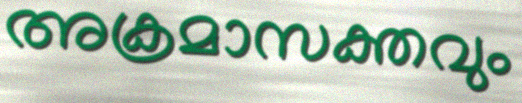
അക്രമാസക്തവും